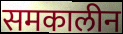
समकालीन